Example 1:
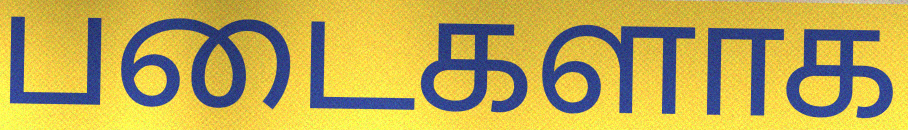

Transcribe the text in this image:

படைகளாக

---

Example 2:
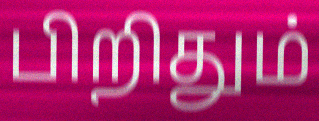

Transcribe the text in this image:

பிறிதும்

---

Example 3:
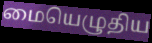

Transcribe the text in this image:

மையெழுதிய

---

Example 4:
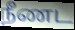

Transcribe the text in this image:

நீணட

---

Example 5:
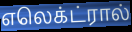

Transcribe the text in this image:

எலெக்ட்ரால்